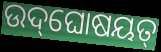
ଉଦ୍‌ଘୋଷୟତ୍